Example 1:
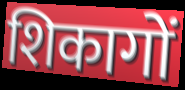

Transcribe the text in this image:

शिकागों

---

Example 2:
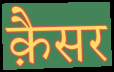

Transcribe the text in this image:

क़ैसर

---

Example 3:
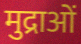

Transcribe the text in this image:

मुद्राओं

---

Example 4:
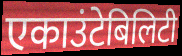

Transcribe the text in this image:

एकाउंटेबिलिटी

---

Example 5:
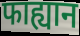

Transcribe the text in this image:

फाह्यान